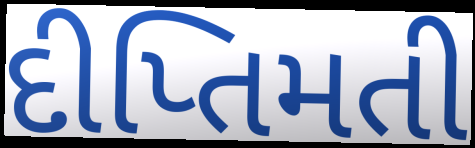
દીપ્તિમતી